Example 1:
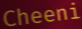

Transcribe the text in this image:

Cheeni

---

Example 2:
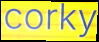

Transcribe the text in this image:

corky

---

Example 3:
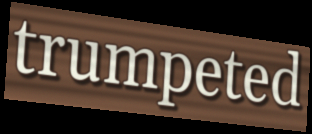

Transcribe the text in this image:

trumpeted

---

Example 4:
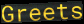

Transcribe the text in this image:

Greets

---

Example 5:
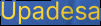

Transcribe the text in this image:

Upadesa